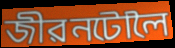
জীৱনটোলৈ